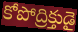
కోపోద్రిక్తుడై